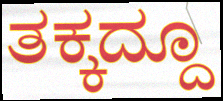
ತಕ್ಕದ್ದೂ